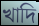
খাদি